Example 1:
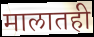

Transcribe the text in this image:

मालातही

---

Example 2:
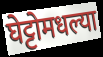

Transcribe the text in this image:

घेट्टोमधल्या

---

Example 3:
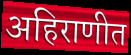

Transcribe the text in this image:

अहिराणीत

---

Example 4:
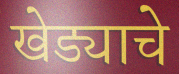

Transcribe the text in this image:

खेड्याचे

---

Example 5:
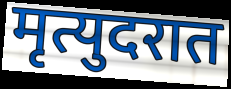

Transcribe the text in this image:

मृत्युदरात